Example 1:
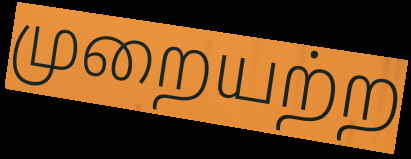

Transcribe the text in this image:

முறையற்ற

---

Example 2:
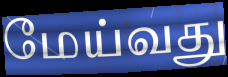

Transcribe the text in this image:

மேய்வது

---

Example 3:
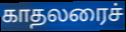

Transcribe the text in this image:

காதலரைச்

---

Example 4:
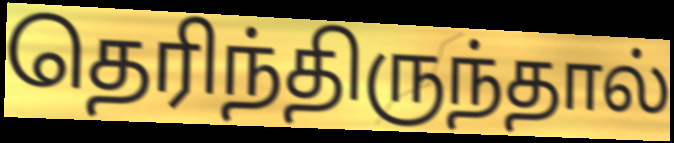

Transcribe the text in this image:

தெரிந்திருந்தால்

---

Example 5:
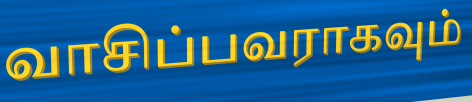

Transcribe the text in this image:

வாசிப்பவராகவும்